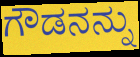
ಗೌಡನನ್ನು